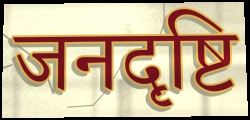
जनदृष्टि